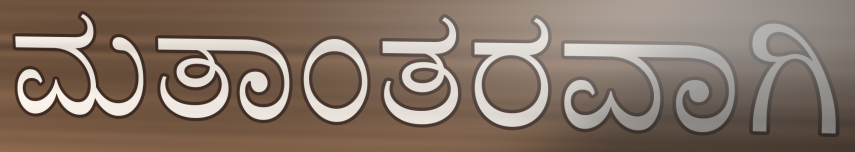
ಮತಾಂತರವಾಗಿ